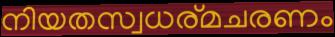
നിയതസ്വധര്മചരണം